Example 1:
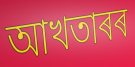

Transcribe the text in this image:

আখতাৰৰ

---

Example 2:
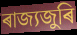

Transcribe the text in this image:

ৰাজ্যজুৰি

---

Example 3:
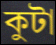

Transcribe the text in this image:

কুটা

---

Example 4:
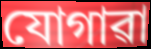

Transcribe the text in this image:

যোগাৱা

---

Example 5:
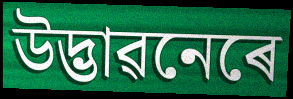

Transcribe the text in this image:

উদ্ভাৱনেৰে